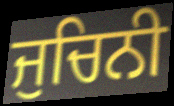
ਜੁਚਿਨੀ